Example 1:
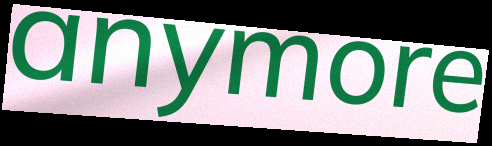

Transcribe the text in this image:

anymore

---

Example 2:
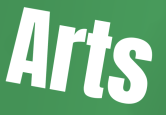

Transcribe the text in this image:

Arts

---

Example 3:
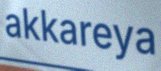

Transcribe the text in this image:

akkareya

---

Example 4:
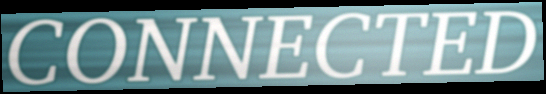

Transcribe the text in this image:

CONNECTED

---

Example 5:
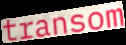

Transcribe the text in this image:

transom